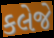
કલેજે